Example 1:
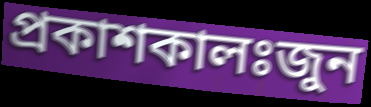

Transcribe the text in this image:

প্রকাশকালঃজুন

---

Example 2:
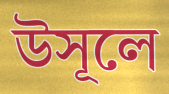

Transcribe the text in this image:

উসূলে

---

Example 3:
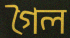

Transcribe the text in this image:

গৈল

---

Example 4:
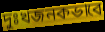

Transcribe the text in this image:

দুঃখজনকভাবে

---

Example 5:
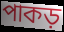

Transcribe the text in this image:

পাকড়